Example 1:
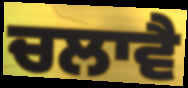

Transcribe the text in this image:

ਚਲਾਵੈ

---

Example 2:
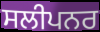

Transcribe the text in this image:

ਸਲੀਪਨਰ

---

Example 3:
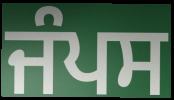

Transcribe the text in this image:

ਜੰਪਸ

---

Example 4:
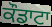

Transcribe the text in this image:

ਕੌਡਾਟਾ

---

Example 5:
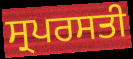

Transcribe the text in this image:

ਸ੍ਰਪਰਸਤੀ